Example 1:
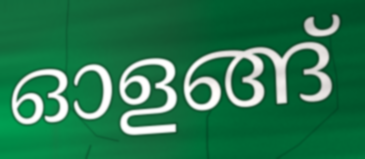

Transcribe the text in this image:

ഓളങ്ങ്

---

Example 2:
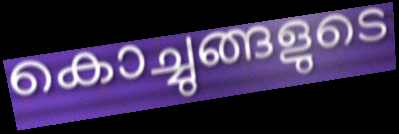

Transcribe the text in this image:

കൊച്ചുങ്ങളുടെ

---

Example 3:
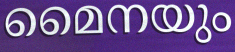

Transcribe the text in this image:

മൈനയും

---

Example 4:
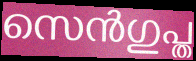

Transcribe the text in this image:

സെൻഗുപ്ത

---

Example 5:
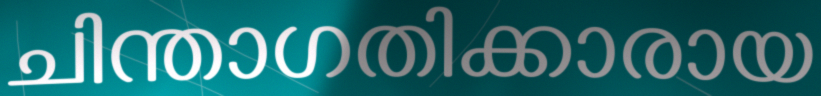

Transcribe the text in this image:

ചിന്താഗതിക്കാരായ